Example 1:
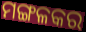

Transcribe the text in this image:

ମଙ୍ଗଳକର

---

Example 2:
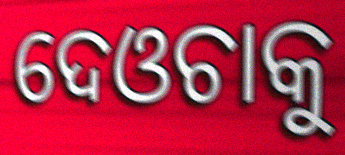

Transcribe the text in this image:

ଦେଓଚାକୁ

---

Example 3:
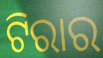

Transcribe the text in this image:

ଟିରାର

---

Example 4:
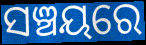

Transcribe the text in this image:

ସଞ୍ଚୟରେ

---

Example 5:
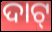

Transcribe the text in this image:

ଦାଟ୍